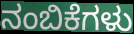
ನಂಬಿಕೆಗಳು